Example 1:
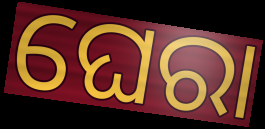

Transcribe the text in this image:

ଘେରା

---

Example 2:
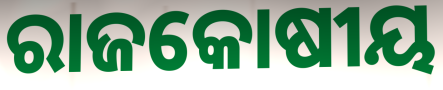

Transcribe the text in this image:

ରାଜକୋଷୀୟ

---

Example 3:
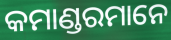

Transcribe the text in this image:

କମାଣ୍ଡରମାନେ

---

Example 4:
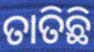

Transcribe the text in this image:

ତାତିଛି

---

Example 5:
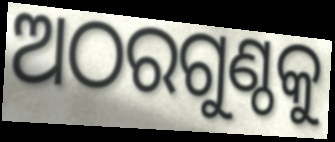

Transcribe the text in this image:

ଅଠରଗୁଣ୍ଠକୁ